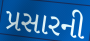
પ્રસારની